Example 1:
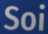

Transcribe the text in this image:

Soi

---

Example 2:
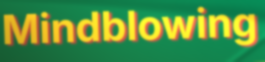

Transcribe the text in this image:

Mindblowing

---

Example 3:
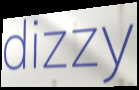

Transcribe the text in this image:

dizzy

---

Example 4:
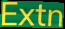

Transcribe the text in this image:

Extn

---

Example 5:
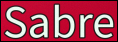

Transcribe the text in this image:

Sabre